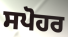
ਸਪੋਹਰ